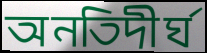
অনতিদীর্ঘ